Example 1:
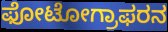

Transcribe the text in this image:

ಫೋಟೋಗ್ರಾಫರನ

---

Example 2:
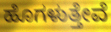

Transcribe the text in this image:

ಹೊಗಳುತ್ತೇವೆ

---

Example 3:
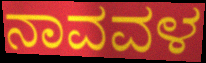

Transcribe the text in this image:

ನಾವವಳ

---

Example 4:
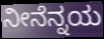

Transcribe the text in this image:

ನೀನೆನ್ನಯ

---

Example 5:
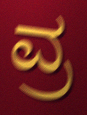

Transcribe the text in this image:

ವ್ರ